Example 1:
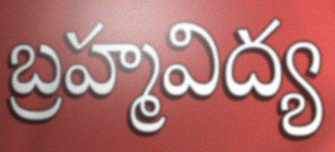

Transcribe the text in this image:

బ్రహ్మవిద్య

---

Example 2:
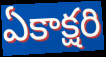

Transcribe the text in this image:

ఏకాక్షరి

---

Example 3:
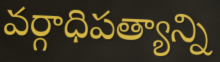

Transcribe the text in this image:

వర్గాధిపత్యాన్ని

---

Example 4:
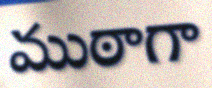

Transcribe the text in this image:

ముఠాగా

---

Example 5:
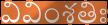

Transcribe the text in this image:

వివింశతిః